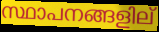
സ്ഥാപനങ്ങളില്